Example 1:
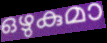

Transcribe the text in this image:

ഒഴുകുമാ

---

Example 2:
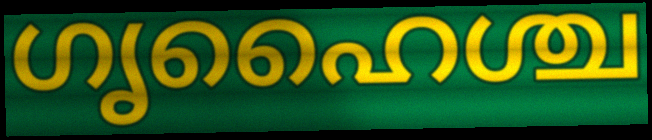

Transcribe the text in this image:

ഗൃഹൈശ്ച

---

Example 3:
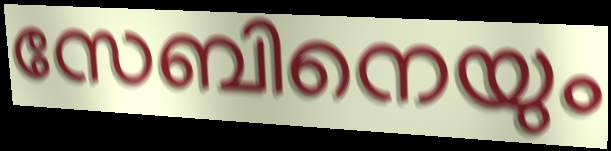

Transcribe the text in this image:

സേബിനെയും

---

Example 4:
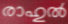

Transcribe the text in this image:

രാഹുൽ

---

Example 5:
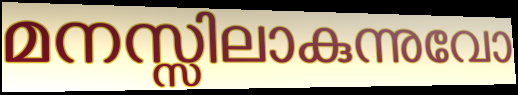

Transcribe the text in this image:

മനസ്സിലാകുന്നുവോ